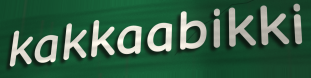
kakkaabikki